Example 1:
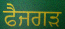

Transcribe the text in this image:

ਫੈਜਗੜ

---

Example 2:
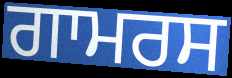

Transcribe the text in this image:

ਗਾਮਰਸ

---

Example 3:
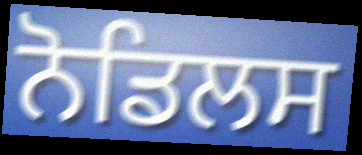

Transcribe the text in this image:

ਨੋਡਿਲਸ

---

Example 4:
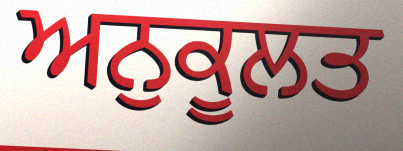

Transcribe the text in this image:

ਅਨੁਕੂਲਤ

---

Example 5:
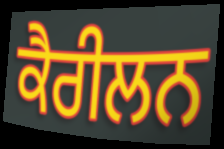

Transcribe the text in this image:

ਕੈਰੀਲਨ